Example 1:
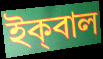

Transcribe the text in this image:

ইক্‌বাল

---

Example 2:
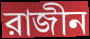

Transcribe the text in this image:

রাজীন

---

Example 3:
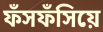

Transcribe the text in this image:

ফঁসফঁসিয়ে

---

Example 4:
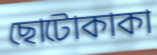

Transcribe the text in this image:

ছোটোকাকা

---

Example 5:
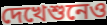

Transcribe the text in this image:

দেখেশুনেও